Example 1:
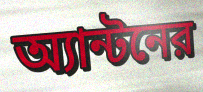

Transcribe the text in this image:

অ্যান্টনের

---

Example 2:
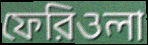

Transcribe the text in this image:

ফেরিওলা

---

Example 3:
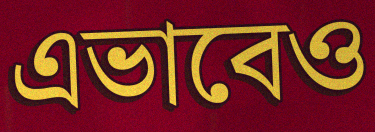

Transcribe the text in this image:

এভাবেও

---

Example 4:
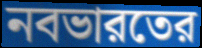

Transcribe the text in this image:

নবভারতের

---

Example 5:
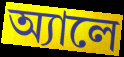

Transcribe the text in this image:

অ্যালে